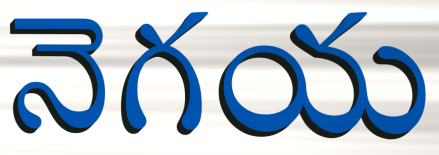
నెగయ